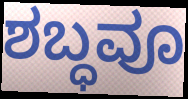
ಶಬ್ಧವೂ